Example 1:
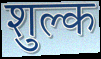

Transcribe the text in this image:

शुल्क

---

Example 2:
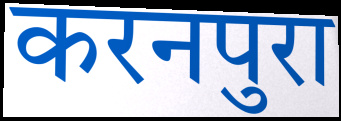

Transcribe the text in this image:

करनपुरा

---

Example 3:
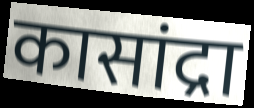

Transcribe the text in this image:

कासांद्रा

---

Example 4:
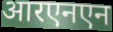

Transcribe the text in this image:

आरएनएन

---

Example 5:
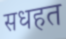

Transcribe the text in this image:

सधहत